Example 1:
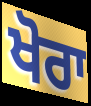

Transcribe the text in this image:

ਖੋਰਾ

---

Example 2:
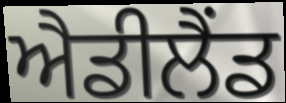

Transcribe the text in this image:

ਐਡੀਲੈਂਡ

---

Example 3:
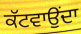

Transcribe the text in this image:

ਕੱਟਵਾਉਂਦਾ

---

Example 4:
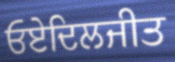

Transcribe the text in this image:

ਓਏਦਿਲਜੀਤ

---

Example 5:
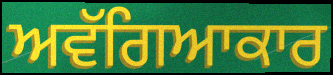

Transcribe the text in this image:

ਅਵੱਗਿਆਕਾਰ